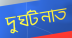
দুৰ্ঘটনাত